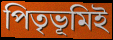
পিতৃভূমিই